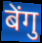
बेंगु